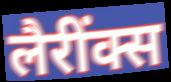
लैरींक्स